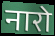
नारो